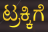
ಟ್ರಕ್ಕಿಗೆ